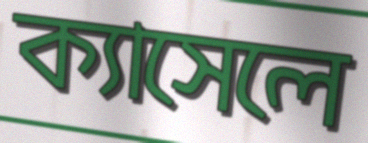
ক্যাসেলে